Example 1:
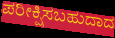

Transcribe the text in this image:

ಪರೀಕ್ಷಿಸಬಹುದಾದ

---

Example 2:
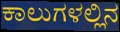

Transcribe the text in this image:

ಕಾಲುಗಳಲ್ಲಿನ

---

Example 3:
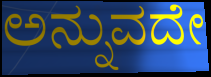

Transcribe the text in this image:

ಅನ್ನುವದೇ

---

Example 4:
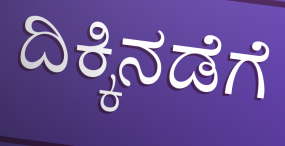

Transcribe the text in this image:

ದಿಕ್ಕಿನಡೆಗೆ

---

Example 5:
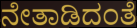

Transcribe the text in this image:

ನೇತಾಡಿದಂತೆ